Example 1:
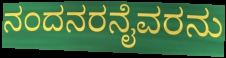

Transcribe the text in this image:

ನಂದನರನೈವರನು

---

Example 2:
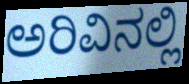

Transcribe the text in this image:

ಅರಿವಿನಲ್ಲಿ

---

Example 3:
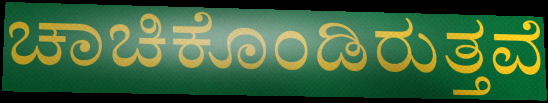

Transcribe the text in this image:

ಚಾಚಿಕೊಂಡಿರುತ್ತವೆ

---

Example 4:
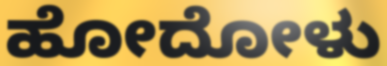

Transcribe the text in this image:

ಹೋದೋಳು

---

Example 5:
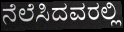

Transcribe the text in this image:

ನೆಲೆಸಿದವರಲ್ಲಿ